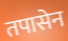
तपासेन